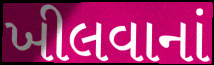
ખીલવાનાં